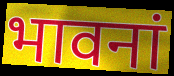
भावनां